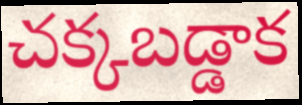
చక్కబడ్డాక